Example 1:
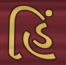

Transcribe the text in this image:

હિં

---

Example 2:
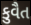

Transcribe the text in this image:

કુવૈત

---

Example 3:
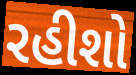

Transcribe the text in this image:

રહીશો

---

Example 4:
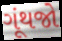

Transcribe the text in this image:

ગૂંથજો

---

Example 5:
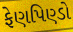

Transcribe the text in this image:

ફેણપિણ્ડો